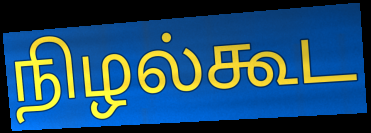
நிழல்கூட